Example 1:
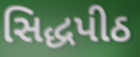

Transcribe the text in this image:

સિદ્ધપીઠ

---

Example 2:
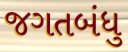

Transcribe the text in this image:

જગતબંધુ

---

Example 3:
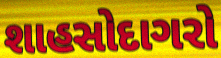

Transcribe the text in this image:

શાહસોદાગરો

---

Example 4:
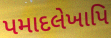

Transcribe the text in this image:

પમાદલેખાપિ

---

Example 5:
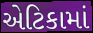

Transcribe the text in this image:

એટિકામાં